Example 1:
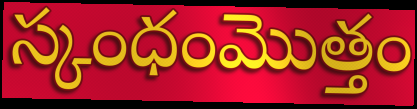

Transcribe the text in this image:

స్కంధంమొత్తం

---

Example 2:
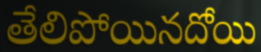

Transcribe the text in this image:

తేలిపోయినదోయి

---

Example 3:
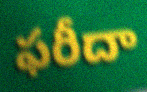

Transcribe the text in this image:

ఫరీదా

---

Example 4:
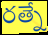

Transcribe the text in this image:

రత్నే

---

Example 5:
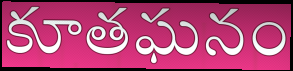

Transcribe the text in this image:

కూతఘనం